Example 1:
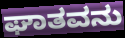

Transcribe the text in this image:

ಘಾತವನು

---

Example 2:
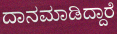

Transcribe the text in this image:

ದಾನಮಾಡಿದ್ದಾರೆ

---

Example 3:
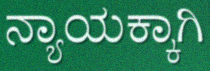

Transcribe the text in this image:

ನ್ಯಾಯಕ್ಕಾಗಿ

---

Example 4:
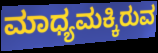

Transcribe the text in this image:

ಮಾಧ್ಯಮಕ್ಕಿರುವ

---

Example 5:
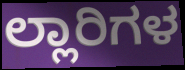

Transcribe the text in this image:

ಲ್ಲಾರಿಗಳ